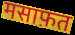
मसाफ़त